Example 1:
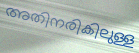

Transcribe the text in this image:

അതിനരികിലുള്ള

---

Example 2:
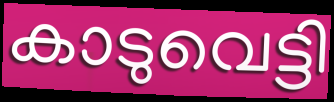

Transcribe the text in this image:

കാടുവെട്ടി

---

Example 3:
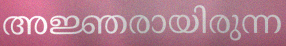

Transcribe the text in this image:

അജ്ഞരായിരുന്ന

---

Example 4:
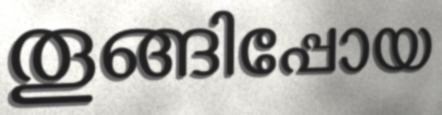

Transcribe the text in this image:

തൂങ്ങിപ്പോയ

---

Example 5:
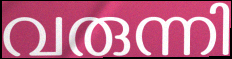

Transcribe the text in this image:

വരുന്നി